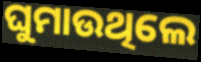
ଘୁମାଉଥିଲେ